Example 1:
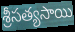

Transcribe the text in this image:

శ్రీసత్యసాయి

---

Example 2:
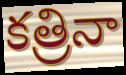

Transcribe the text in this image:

కత్రినా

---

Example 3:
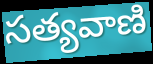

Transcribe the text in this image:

సత్యవాణి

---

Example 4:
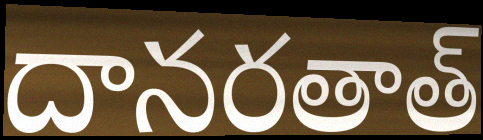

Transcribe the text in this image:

దానరతాత్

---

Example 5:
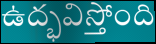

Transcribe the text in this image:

ఉద్భవిస్తోంది